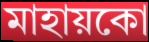
মাহায়কো